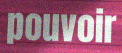
pouvoir